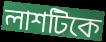
লাশটিকে